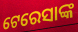
ଟେରେସାଙ୍କ